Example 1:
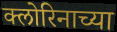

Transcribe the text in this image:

क्लोरिनाच्या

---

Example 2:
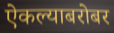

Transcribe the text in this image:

ऐकल्याबरोबर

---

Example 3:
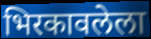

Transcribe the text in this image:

भिरकावलेला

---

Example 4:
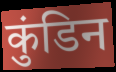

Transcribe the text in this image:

कुंडिन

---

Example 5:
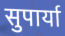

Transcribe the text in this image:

सुपार्या